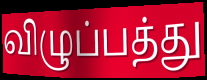
விழுப்பத்து